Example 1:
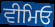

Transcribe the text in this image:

ਵੀਮਿਓ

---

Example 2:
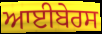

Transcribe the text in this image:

ਆਈਬੇਰਸ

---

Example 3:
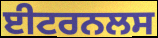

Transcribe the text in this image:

ਈਟਰਨਲਸ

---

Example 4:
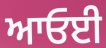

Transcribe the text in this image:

ਆਓਈ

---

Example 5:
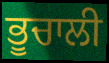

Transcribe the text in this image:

ਭੂਚਾਲੀ